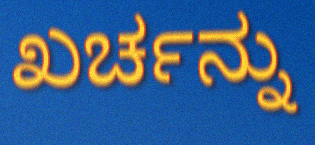
ಖರ್ಚನ್ನು